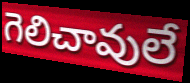
గెలిచావులే